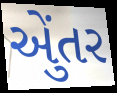
એુંતર